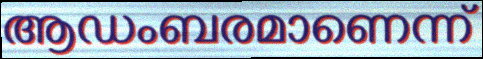
ആഡംബരമാണെന്ന്